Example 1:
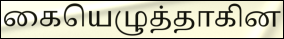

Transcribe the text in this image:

கையெழுத்தாகின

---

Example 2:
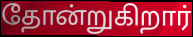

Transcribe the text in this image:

தோன்றுகிறார்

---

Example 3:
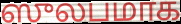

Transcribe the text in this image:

ஸுலபமாக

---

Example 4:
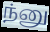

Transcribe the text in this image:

ந்னு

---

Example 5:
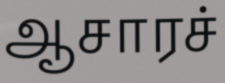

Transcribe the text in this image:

ஆசாரச்